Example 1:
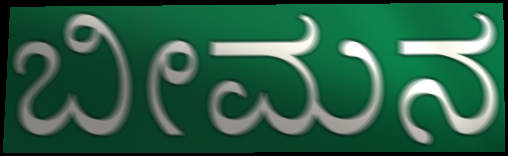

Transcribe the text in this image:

ಬೀಮನ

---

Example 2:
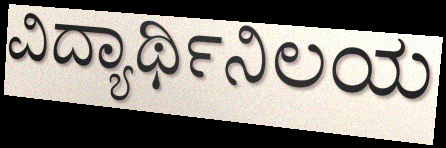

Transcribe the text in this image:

ವಿದ್ಯಾರ್ಥಿನಿಲಯ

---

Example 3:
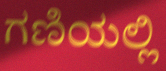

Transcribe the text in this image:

ಗಣಿಯಲ್ಲಿ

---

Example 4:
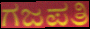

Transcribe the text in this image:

ಗಜಪತಿ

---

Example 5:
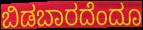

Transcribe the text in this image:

ಬಿಡಬಾರದೆಂದೂ